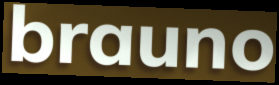
brauno